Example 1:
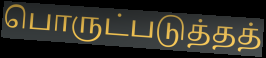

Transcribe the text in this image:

பொருட்படுத்தத்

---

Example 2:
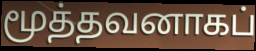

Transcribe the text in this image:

மூத்தவனாகப்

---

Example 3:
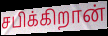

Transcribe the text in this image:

சபிக்கிறான்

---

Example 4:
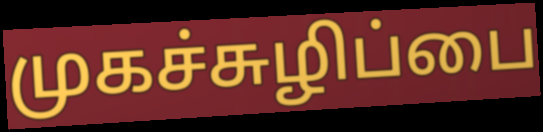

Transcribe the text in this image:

முகச்சுழிப்பை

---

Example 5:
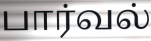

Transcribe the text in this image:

பார்வல்